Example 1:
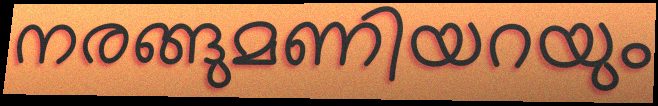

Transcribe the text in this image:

നരങ്ങുമണിയറയും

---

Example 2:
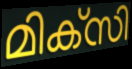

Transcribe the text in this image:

മിക്‌സി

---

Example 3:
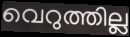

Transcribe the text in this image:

വെറുത്തില്ല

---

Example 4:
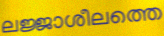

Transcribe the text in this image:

ലജ്ജാശീലത്തെ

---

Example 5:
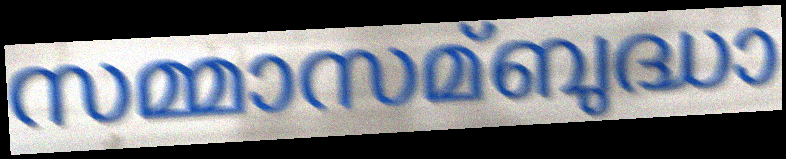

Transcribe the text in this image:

സമ്മാസമ്ബുദ്ധാ